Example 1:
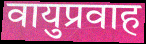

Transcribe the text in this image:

वायुप्रवाह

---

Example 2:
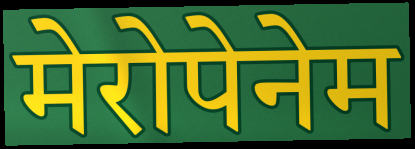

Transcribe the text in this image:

मेरोपेनेम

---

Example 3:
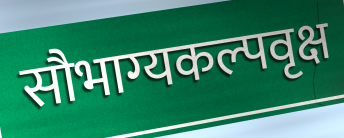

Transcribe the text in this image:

सौभाग्यकल्पवृक्ष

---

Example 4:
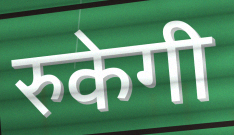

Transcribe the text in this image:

रुकेगी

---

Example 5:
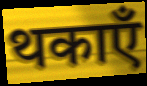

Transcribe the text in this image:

थकाएँ